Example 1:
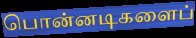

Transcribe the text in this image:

பொன்னடிகளைப்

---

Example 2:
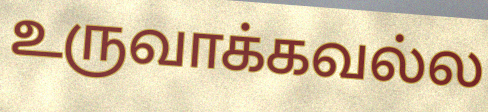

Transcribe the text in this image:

உருவாக்கவல்ல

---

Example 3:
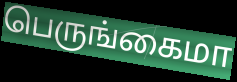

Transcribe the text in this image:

பெருங்கைமா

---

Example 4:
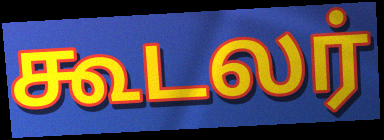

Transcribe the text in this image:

கூடலர்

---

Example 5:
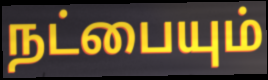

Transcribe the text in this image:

நட்பையும்